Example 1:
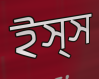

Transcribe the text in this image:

ইস্‌স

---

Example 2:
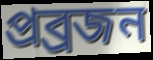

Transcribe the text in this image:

প্রব্রজন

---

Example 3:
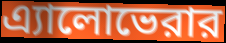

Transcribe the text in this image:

এ্যালোভেরার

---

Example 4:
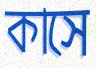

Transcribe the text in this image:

কাসে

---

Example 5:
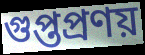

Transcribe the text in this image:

গুপ্তপ্রণয়